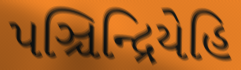
પઞ્ચિન્દ્રિયેહિ